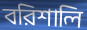
বরিশালি